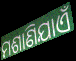
ମଶାଣିଯାଏଁ